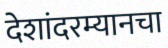
देशांदरम्यानचा